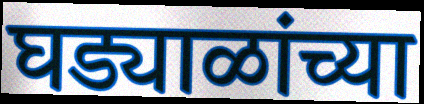
घड्याळांच्या